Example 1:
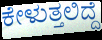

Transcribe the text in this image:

ಕೇಳುತ್ತಲಿದ್ದೆ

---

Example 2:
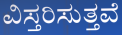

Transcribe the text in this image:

ವಿಸ್ತರಿಸುತ್ತವೆ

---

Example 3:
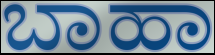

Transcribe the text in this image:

ಬಾಹಾ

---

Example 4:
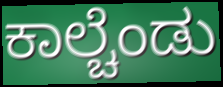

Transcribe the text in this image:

ಕಾಲ್ಚೆಂಡು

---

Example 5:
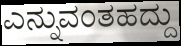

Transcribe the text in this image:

ಎನ್ನುವಂತಹದ್ದು